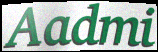
Aadmi